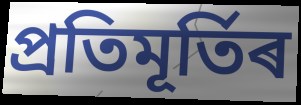
প্ৰতিমূৰ্তিৰ